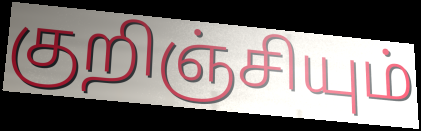
குறிஞ்சியும்